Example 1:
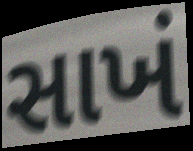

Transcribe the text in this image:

સાખં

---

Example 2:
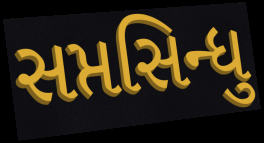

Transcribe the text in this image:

સપ્તસિન્ધુ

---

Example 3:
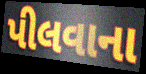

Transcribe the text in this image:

પીલવાના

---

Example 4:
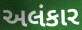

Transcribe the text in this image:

અલંકાર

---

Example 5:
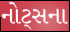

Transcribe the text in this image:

નોટ્સના